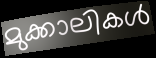
മുക്കാലികൾ